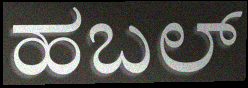
ಹಬಲ್